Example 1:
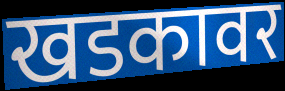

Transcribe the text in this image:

खडकावर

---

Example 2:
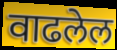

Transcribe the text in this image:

वाढलेल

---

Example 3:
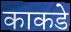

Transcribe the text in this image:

काकडे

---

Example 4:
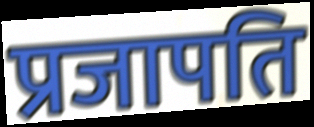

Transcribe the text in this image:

प्रजापति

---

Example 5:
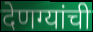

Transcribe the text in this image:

देणग्यांची